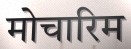
मोचारिम